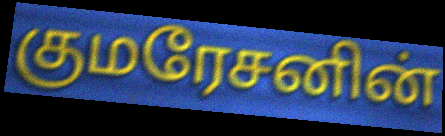
குமரேசனின்